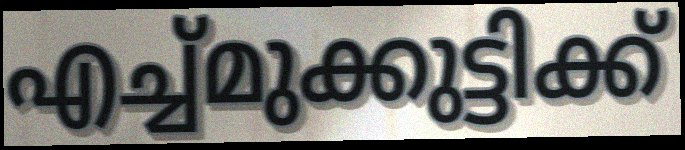
എച്ച്മുക്കുട്ടിക്ക്